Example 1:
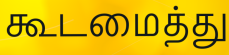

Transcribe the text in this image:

கூடமைத்து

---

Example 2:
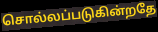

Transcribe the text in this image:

சொல்லப்படுகின்றதே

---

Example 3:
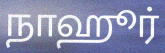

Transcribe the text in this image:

நாஹூர்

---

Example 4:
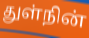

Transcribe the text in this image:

துள்நின்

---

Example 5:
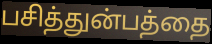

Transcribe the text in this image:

பசித்துன்பத்தை